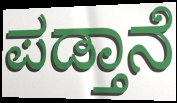
ಪಡ್ತಾನೆ